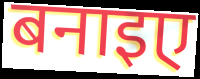
बनाइए